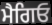
ਮੈਗਿਓ